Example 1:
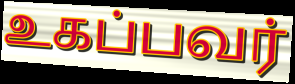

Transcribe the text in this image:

உகப்பவர்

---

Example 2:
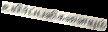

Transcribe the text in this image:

உயிர்ப்பலிகளையும்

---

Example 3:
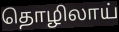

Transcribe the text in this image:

தொழிலாய்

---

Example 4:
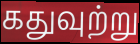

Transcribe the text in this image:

கதுவுற்று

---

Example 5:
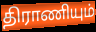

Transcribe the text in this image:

திராணியும்